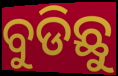
ବୁଡିଛୁ